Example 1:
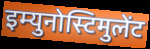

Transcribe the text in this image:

इम्युनोस्टिमुलेंट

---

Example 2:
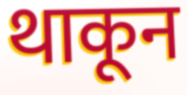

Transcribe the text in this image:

थाकून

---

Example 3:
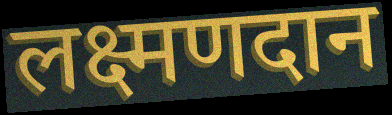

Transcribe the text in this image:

लक्ष्मणदान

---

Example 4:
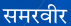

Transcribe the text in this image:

समरवीर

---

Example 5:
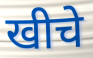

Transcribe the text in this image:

खीचे